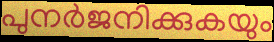
പുനർജനിക്കുകയും